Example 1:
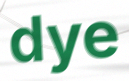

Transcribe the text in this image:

dye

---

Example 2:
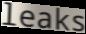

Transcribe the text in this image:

leaks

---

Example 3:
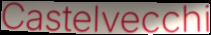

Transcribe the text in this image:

Castelvecchi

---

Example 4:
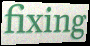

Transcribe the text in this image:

fixing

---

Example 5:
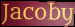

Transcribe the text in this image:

Jacoby